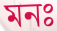
মনঃ